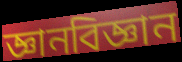
জ্ঞানবিজ্ঞান